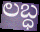
లబ్ధ